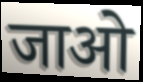
जाओ